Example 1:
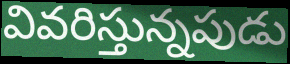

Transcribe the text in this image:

వివరిస్తున్నపుడు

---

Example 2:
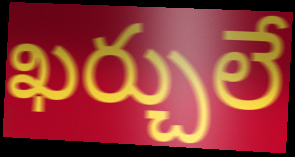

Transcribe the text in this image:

ఖర్చులే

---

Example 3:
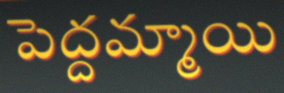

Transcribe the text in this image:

పెద్దమ్మాయి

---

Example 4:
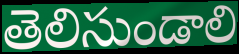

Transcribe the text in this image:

తెలిసుండాలి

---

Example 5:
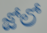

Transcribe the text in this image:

జోలో